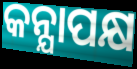
କନ୍ଯାପକ୍ଷ